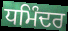
ਧਮਿੰਦਰ